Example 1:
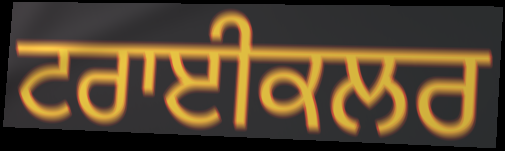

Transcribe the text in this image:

ਟਰਾਈਕਲਰ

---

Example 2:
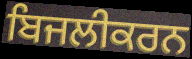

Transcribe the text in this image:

ਬਿਜਲੀਕਰਨ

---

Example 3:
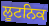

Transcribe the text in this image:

ਲੂਟਨਿਕ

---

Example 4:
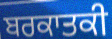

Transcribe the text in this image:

ਬਰਕਾਤਕੀ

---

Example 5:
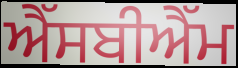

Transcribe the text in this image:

ਐੱਸਬੀਐੱਮ